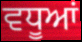
ਵਧੂਆਂ